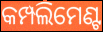
କମ୍ପଲିମେଣ୍ଟ